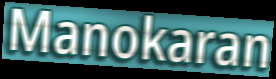
Manokaran